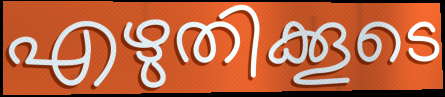
എഴുതിക്കൂടെ